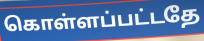
கொள்ளப்பட்டதே